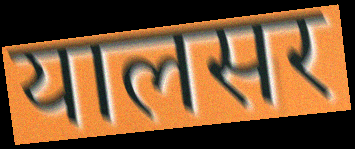
यालसर